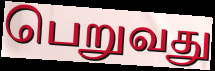
பெறுவது